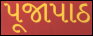
પૂજાપાઠ